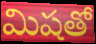
మిషతో